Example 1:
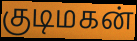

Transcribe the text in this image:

குடிமகன்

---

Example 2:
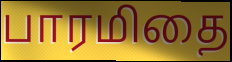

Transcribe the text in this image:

பாரமிதை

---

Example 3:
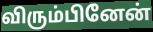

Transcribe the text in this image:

விரும்பினேன்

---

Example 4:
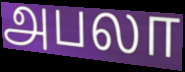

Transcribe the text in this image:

அபலா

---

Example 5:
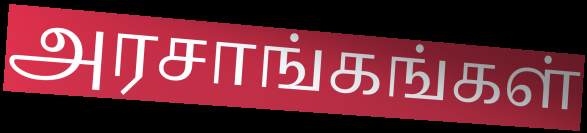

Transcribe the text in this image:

அரசாங்கங்கள்